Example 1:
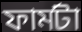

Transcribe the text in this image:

ফার্মটা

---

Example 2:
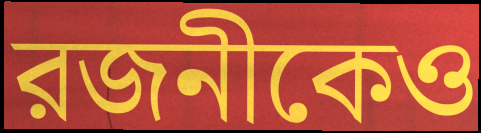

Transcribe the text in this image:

রজনীকেও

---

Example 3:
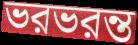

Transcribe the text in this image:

ভরভরন্ত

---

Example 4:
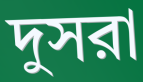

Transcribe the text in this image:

দুসরা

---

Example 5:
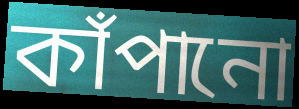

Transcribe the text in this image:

কাঁপানো